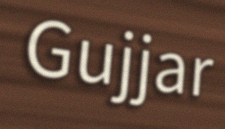
Gujjar